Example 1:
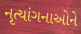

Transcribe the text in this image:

નૃત્યાંગનાઓને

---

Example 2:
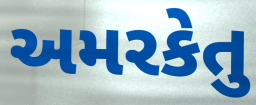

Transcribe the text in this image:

અમરકેતુ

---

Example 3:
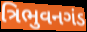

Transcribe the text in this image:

ત્રિભુવનગંડ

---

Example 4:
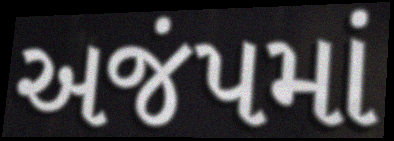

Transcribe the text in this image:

અજંપમાં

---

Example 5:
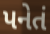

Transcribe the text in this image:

પનેતં